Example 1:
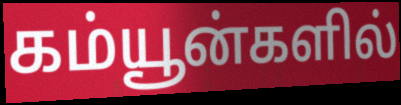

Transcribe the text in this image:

கம்யூன்களில்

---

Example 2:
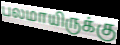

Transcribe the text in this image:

பலமாயிருக்கு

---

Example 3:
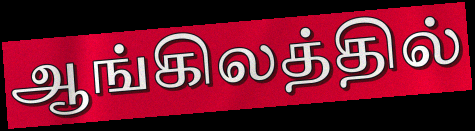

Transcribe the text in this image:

ஆங்கிலத்தில்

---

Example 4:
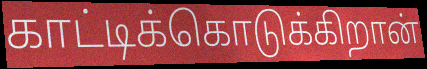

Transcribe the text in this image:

காட்டிக்கொடுக்கிறான்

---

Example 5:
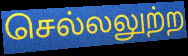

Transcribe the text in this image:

செல்லலுற்ற